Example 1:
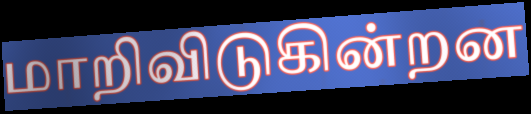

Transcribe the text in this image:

மாறிவிடுகின்றன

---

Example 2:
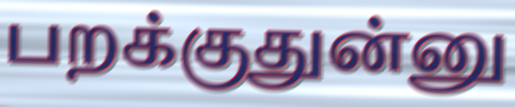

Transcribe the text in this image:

பறக்குதுன்னு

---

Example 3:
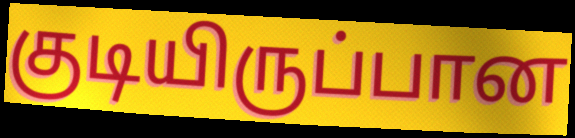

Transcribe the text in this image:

குடியிருப்பான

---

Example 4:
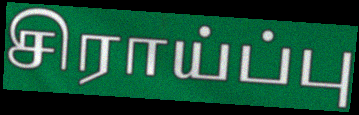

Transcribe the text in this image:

சிராய்ப்பு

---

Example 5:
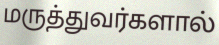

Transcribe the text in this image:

மருத்துவர்களால்